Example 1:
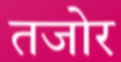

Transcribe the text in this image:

तजोर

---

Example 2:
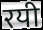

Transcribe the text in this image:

रयी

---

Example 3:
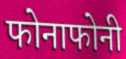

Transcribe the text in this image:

फोनाफोनी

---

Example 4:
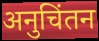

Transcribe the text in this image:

अनुचिंतन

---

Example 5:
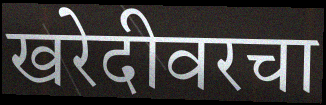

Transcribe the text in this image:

खरेदीवरचा